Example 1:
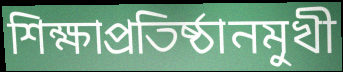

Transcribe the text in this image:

শিক্ষাপ্রতিষ্ঠানমুখী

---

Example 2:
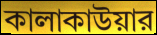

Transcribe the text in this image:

কালাকাউয়ার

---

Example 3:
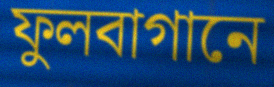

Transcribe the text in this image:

ফুলবাগানে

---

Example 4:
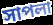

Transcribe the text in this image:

সাপলা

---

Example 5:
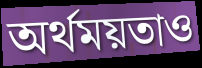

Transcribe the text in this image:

অর্থময়তাও